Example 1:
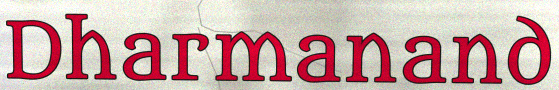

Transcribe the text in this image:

Dharmanand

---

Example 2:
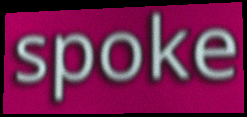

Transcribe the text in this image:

spoke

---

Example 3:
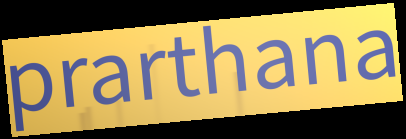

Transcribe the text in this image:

prarthana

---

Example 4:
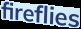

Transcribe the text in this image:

fireflies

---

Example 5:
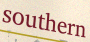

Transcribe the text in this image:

southern